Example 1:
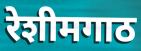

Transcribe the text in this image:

रेशीमगाठ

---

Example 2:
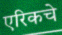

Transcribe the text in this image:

एरिकचे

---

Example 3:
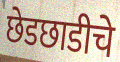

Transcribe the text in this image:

छेडछाडीचे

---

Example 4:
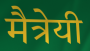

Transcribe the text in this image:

मैत्रेयी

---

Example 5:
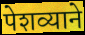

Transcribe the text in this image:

पेशव्याने